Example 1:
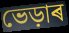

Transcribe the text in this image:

ভেড়াৰ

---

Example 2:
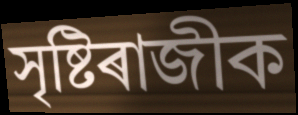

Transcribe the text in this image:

সৃষ্টিৰাজীক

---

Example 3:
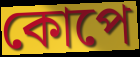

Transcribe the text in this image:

কোপে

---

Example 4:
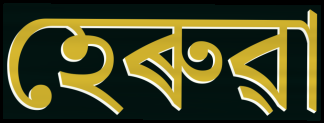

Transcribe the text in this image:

হেৰুৱা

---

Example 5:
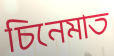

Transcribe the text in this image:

চিনেমাত